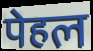
पेहल